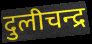
दुलीचन्द्र